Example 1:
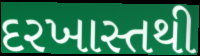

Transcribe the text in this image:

દરખાસ્તથી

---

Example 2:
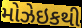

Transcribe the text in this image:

મોઝેઇકથી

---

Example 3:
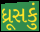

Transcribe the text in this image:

ધ્રૂસકું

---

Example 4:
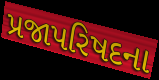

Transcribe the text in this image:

પ્રજાપરિષદના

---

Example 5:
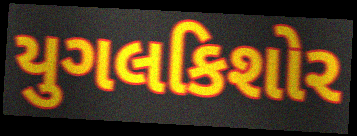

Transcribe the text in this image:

યુગલકિશોર